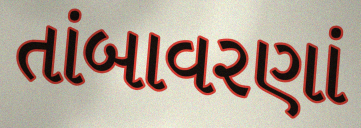
તાંબાવરણાં